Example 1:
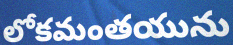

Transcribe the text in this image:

లోకమంతయును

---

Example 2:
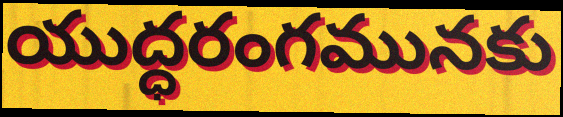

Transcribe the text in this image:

యుద్ధరంగమునకు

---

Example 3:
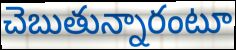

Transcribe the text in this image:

చెబుతున్నారంటూ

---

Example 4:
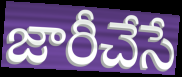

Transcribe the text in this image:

జారీచేసే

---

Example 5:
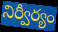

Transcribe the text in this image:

నిర్వీర్యం